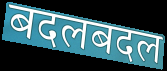
बदलबदल